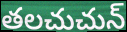
తలచుచున్